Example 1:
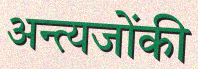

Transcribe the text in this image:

अन्त्यजोंकी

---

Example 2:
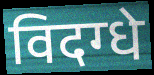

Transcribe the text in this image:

विदग्धे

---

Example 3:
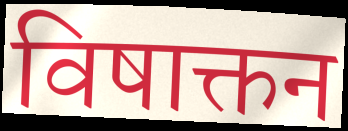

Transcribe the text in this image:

विषाक्तन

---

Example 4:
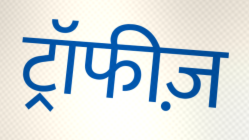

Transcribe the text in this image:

ट्रॉफीज़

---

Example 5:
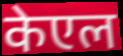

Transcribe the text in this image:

केएल